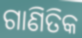
ଗାଣିତିକ